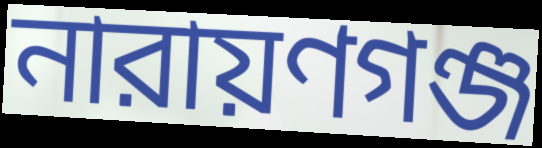
নারায়ণগঞ্জ